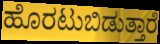
ಹೊರಟುಬಿಡುತ್ತಾರೆ